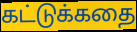
கட்டுக்கதை